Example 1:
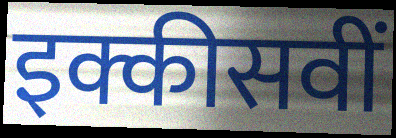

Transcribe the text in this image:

इक्‍कीसवीं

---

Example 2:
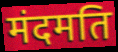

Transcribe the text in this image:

मंदमति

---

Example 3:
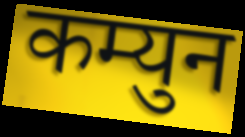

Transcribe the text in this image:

कम्युन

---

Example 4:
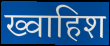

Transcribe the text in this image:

ख्वाहिश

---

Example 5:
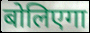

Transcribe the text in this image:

बोलिएगा